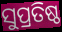
ସୁପ୍ରତିଷ୍ଠ